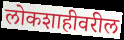
लोकशाहीवरील